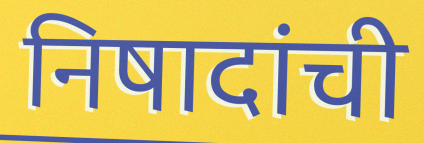
निषादांची